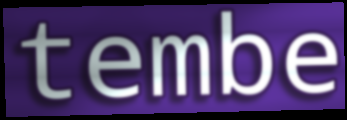
tembe